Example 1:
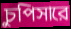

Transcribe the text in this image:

চুপিসারে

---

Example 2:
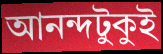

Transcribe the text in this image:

আনন্দটুকুই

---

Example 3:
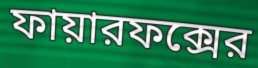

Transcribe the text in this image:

ফায়ারফক্সের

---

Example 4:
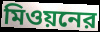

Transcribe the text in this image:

মিওয়নের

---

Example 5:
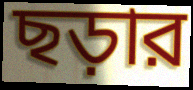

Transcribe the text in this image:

ছড়ার